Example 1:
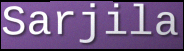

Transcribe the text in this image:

Sarjila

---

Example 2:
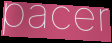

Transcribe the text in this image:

pacer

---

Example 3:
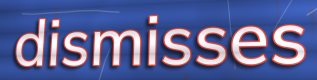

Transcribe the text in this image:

dismisses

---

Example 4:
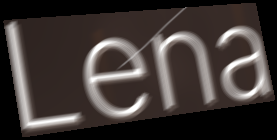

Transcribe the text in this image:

Lena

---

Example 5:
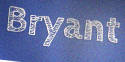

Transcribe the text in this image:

Bryant